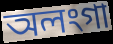
অলংগা